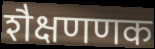
शैक्षणणक